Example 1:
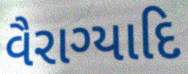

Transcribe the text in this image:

વૈરાગ્યાદિ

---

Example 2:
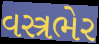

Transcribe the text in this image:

વસ્ત્રભેર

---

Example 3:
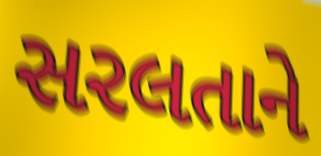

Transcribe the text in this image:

સરલતાને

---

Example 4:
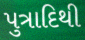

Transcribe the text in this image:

પુત્રાદિથી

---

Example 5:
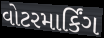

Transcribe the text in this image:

વોટરમાર્કિંગ